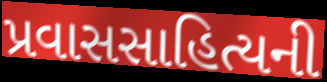
પ્રવાસસાહિત્યની